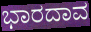
ಭಾರದಾವ